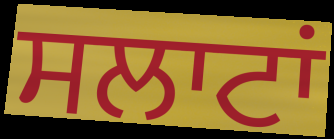
ਸਲਾਟਾਂ